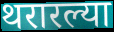
थरारल्या